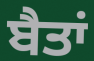
ਬੈਤਾਂ